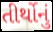
તીર્થોનું